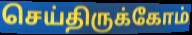
செய்திருக்கோம்